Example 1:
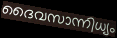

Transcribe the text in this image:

ദൈവസാന്നിധ്യം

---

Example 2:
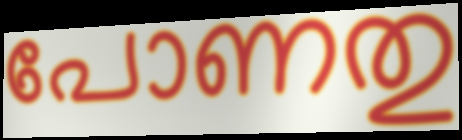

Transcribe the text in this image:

പോണതു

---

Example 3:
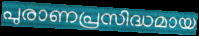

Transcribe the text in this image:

പുരാണപ്രസിദ്ധമായ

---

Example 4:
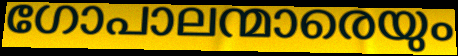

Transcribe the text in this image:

ഗോപാലന്മാരെയും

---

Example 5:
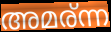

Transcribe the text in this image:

അമര്ന്ന